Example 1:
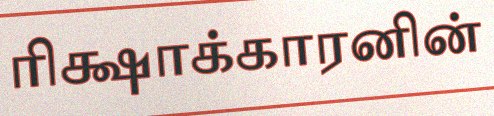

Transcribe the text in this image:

ரிக்ஷாக்காரனின்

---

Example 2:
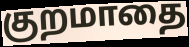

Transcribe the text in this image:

குறமாதை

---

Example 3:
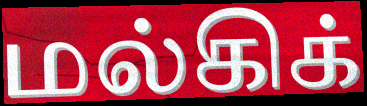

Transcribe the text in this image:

மல்கிக்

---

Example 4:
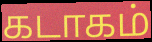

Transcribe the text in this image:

கடாகம்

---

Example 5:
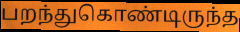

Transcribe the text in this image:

பறந்துகொண்டிருந்த